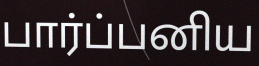
பார்ப்பனிய